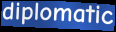
diplomatic